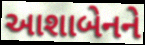
આશાબેનને